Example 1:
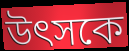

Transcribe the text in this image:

উৎসকে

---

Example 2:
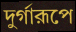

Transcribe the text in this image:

দুর্গারূপে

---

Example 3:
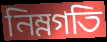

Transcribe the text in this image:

নিম্নগতি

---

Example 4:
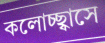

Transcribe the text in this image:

কলোচ্ছ্বাসে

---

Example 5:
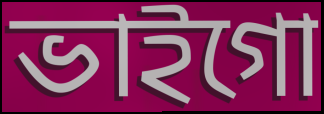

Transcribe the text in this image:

ভাইগো